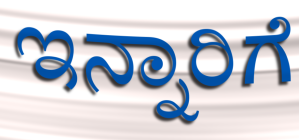
ಇನ್ನಾರಿಗೆ